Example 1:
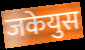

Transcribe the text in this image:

जकेयुस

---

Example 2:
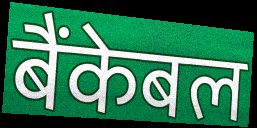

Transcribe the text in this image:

बैंकेबल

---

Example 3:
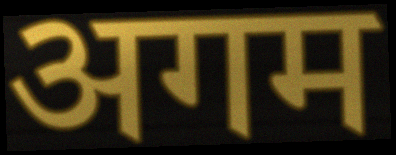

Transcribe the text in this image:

अगम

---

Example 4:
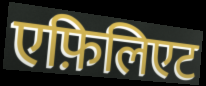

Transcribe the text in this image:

एफ़िलिएट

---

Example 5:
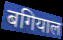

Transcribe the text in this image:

बगियाल